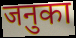
जनुका